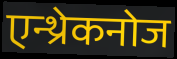
एन्थ्रेकनोज